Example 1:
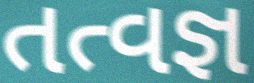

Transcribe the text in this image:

તત્વજ્ઞ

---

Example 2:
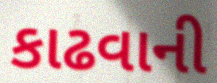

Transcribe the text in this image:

કાઢવાની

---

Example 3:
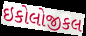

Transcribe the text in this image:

ઇકોલોજીકલ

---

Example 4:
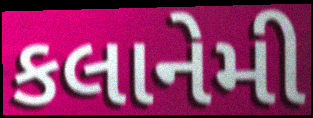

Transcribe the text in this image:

કલાનેમી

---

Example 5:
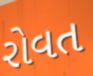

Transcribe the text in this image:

રોવત